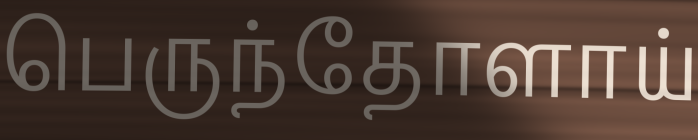
பெருந்தோளாய்